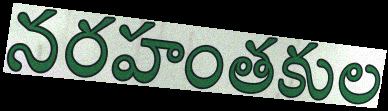
నరహంతకుల